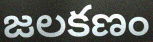
జలకణం